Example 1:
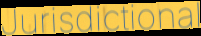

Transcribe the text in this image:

Jurisdictional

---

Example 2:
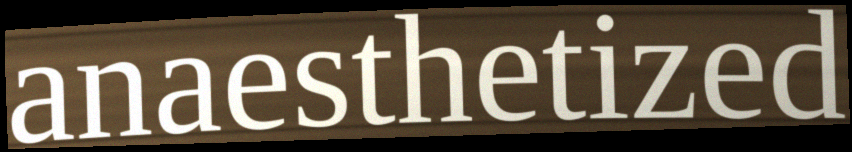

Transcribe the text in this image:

anaesthetized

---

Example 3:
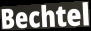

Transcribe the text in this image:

Bechtel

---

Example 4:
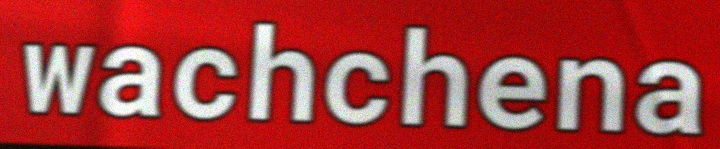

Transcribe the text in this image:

wachchena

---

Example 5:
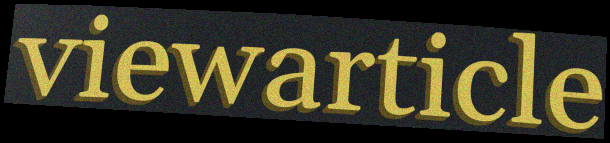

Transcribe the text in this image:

viewarticle